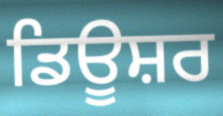
ਡਿਊਸ਼ਰ